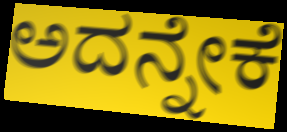
ಅದನ್ನೇಕೆ